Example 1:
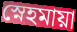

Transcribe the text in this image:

স্নেহমায়া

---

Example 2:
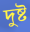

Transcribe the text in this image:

দুষ্ট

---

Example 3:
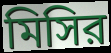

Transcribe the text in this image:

মিসির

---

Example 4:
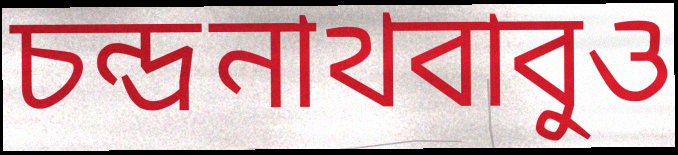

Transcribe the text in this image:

চন্দ্রনাথবাবুও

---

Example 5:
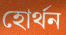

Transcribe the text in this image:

হোর্থন